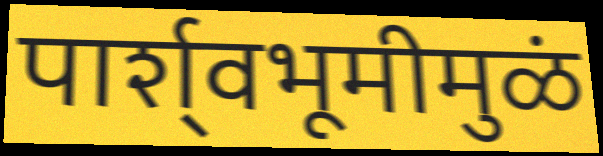
पार्श्वभूमीमुळं